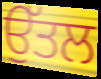
ਉੱਤਲ